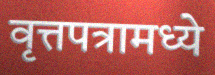
वृत्तपत्रामध्ये